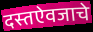
दस्तऐवजाचे